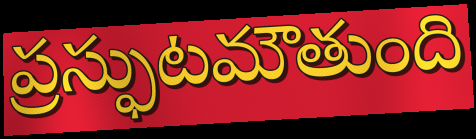
ప్రస్ఫుటమౌతుంది